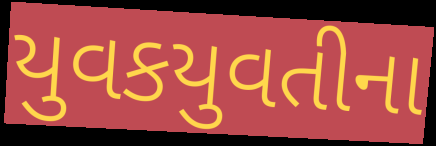
યુવકયુવતીના